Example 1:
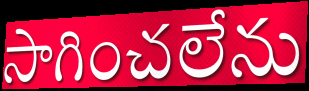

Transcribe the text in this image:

సాగించలేను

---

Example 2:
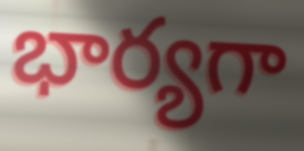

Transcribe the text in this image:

భార్యగా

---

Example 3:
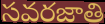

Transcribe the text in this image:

సవరజాతి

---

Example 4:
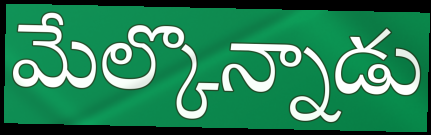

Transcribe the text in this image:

మేల్కొన్నాడు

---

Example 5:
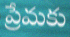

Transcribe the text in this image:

ప్రేమకు